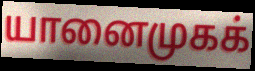
யானைமுகக்